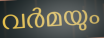
വർമയും